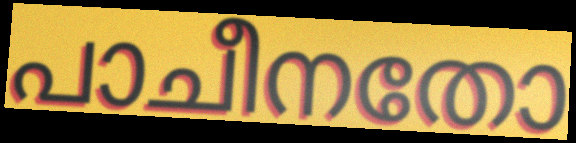
പാചീനതോ